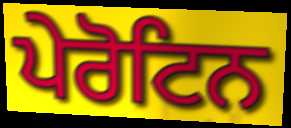
ਪੇਰੋਟਿਨ